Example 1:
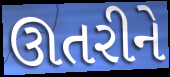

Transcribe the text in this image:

ઊતરીને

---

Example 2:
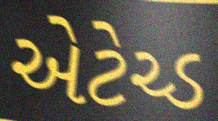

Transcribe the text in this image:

એટેચ્ડ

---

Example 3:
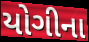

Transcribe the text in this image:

યોગીના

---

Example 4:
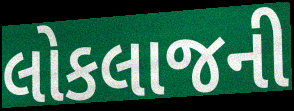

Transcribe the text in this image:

લોકલાજની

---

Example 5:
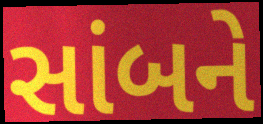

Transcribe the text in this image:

સાંબને